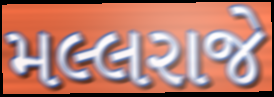
મલ્લરાજે